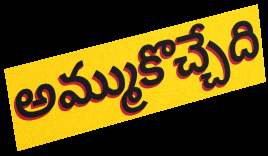
అమ్ముకొచ్చేది